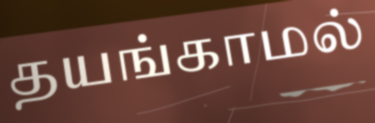
தயங்காமல்